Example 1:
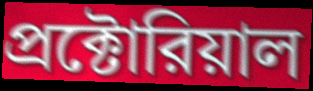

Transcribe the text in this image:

প্রক্টোরিয়াল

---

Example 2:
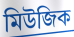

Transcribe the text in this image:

মিউজিক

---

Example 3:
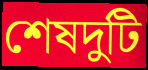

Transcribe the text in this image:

শেষদুটি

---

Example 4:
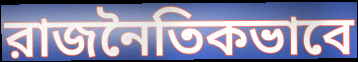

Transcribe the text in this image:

রাজনৈতিকভাবে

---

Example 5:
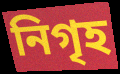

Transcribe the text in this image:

নিগৃহ